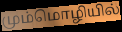
மும்மொழியில்